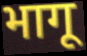
भागू